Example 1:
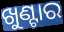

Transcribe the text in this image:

ଖୁଣ୍ଟାର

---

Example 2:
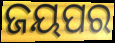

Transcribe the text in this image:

ଜୟପର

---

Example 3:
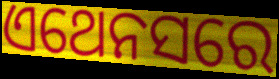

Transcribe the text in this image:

ଏଥେନସରେ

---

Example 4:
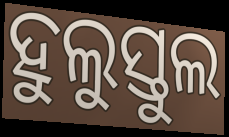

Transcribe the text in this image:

ହୁଲୁସ୍ତୁଲ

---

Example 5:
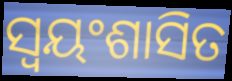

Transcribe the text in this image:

ସ୍ବୟଂଶାସିତ